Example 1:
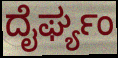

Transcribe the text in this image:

ದೈರ್ಘ್ಯಂ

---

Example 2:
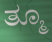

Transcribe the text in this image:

ತ್ಮೂ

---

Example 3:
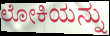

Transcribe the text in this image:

ಲೋಕಿಯನ್ನು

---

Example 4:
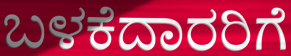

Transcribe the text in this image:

ಬಳಕೆದಾರರಿಗೆ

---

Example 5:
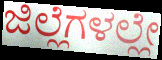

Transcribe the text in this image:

ಜಿಲ್ಲೆಗಳಲ್ಲೇ